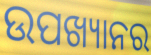
ଉପଖ୍ୟାନର